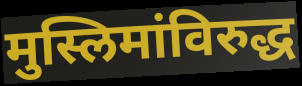
मुस्लिमांविरुद्ध